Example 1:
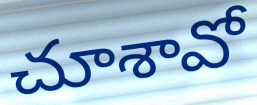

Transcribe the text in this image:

చూశావో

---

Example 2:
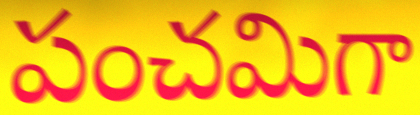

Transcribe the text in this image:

పంచమిగా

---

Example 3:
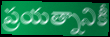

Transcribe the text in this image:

ప్రయత్నానికీ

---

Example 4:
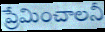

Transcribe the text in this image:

ప్రేమించాలనీ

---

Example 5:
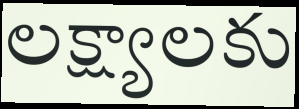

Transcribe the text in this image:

లక్ష్యాలకు